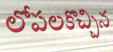
లోపలకొచ్చిన